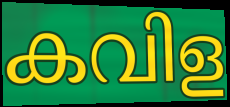
കവിള